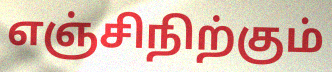
எஞ்சிநிற்கும்